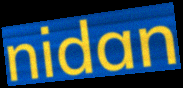
nidan